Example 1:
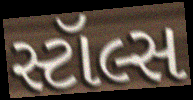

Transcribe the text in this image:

સ્ટૉલ્સ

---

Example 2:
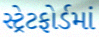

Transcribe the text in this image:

સ્ટ્રેટફોર્ડમાં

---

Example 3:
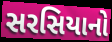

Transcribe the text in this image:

સરસિયાનો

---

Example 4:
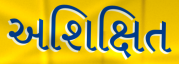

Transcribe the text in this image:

અશિક્ષિત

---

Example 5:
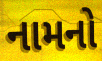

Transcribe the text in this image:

નામનો